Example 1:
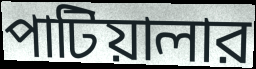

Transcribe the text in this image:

পাটিয়ালার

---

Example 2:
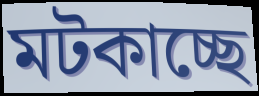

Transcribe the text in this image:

মটকাচ্ছে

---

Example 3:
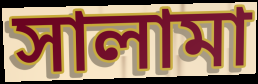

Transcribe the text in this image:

সালামা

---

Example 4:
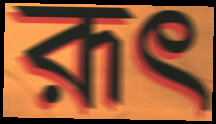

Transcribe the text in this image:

রূৎ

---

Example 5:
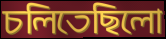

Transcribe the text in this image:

চলিতেছিলো